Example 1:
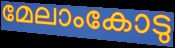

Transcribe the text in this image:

മേലാംകോടു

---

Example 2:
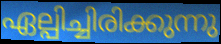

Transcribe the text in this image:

ഏല്പിച്ചിരിക്കുന്നു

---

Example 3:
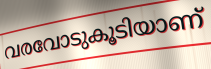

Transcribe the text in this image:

വരവോടുകൂടിയാണ്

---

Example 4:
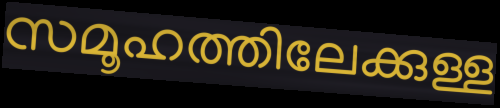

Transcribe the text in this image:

സമൂഹത്തിലേക്കുള്ള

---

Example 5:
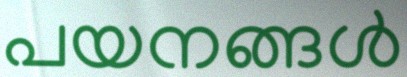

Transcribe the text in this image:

പയനങ്ങൾ